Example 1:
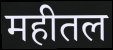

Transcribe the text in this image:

महीतल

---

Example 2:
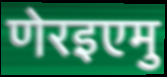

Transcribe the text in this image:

णेरइएमु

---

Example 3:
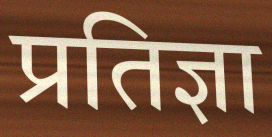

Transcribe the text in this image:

प्रतिज्ञा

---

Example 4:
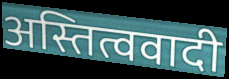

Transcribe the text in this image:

अस्तित्ववादी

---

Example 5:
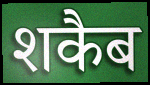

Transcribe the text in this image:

शकैब